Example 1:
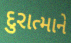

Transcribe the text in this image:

દુરાત્માને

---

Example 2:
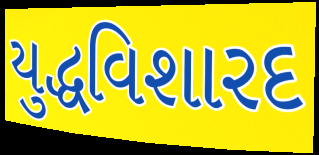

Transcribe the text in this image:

યુદ્ધવિશારદ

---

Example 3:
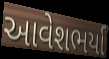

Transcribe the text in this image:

આવેશભર્યા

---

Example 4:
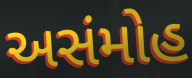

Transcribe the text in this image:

અસંમોહ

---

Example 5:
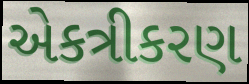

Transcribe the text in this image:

એકત્રીકરણ